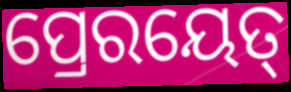
ପ୍ରେରୟେତ୍